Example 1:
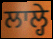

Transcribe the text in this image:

ਲਾਲ੍ਹੇ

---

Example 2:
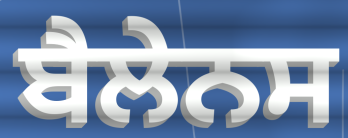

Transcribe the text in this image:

ਬੈਲੇਨਸ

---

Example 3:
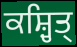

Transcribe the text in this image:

ਕਸ਼੍ਚਿਤ੍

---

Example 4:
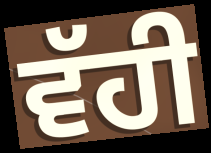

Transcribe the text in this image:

ਵੱਹੀ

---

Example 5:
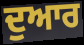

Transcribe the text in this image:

ਦੁਆਰ